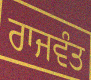
ਰਾਜਵੰਤ